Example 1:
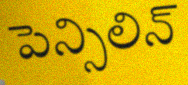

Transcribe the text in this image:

పెన్సిలిన్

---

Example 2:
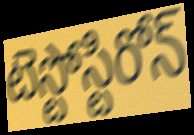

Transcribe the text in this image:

టెస్టోస్టిరోన్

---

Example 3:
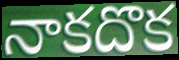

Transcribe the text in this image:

నాకదొక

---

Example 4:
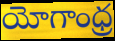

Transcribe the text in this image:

యోగాంధ్ర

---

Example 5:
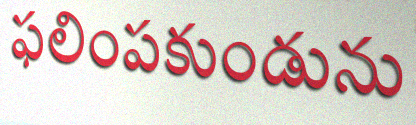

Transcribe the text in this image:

ఫలింపకుండును